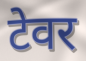
टेवर